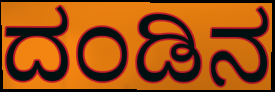
ದಂಡಿನ